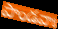
పాండవాః